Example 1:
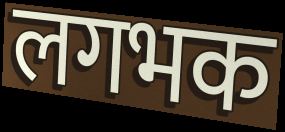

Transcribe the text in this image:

लगभक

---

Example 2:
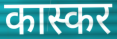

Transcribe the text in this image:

कास्कर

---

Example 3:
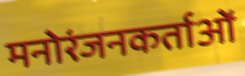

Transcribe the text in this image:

मनोरंजनकर्ताओं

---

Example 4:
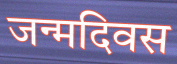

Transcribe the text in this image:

जन्मदिवस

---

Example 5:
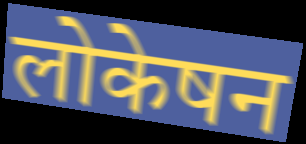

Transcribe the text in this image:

लोकेषन